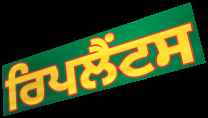
ਰਿਪਲੈਂਟਸ